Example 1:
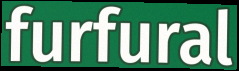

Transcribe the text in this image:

furfural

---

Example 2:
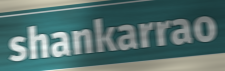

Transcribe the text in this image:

shankarrao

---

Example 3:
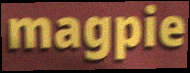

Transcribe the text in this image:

magpie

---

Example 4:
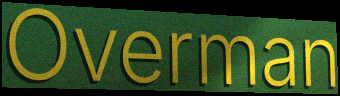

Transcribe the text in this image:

Overman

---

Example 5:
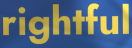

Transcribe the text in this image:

rightful